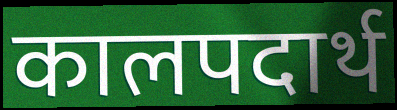
कालपदार्थ